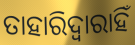
ତାହାରିଦ୍ୱାରାହିଁ